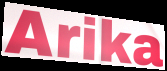
Arika